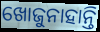
ଖୋଜୁନାହାନ୍ତି